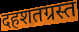
दहशतग्रस्त